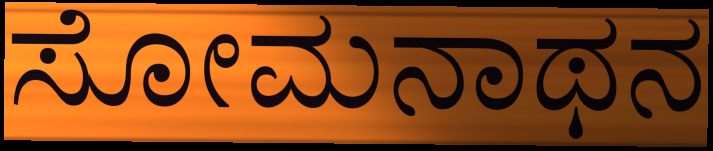
ಸೋಮನಾಥನ